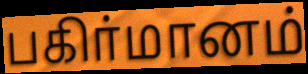
பகிர்மானம்